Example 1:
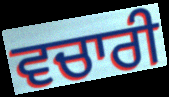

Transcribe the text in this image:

ਵਚਾਰੀ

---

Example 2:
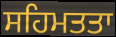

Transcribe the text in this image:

ਸਹਿਮਤਤਾ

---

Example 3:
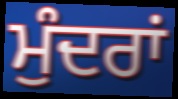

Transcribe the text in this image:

ਮੁੰਦਰਾਂ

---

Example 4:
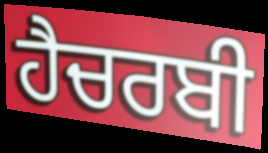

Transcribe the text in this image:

ਹੈਚਰਬੀ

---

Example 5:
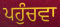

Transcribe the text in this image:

ਪਹੁੰਚਵਾ